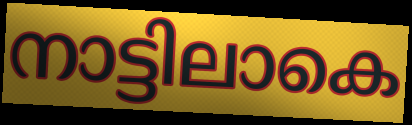
നാട്ടിലാകെ